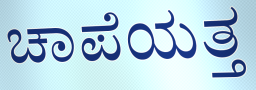
ಚಾಪೆಯತ್ತ